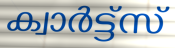
ക്വാർട്ട്സ്